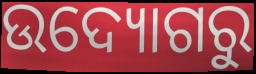
ଉଦ୍ୟୋଗରୁ